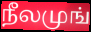
நீலமுங்